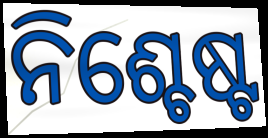
ନିଶ୍ଚେଷ୍ଟ